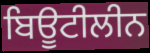
ਬਿਊਟੀਲੀਨ